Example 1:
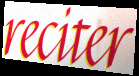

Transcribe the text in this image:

reciter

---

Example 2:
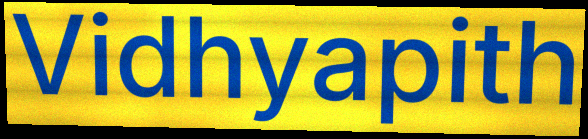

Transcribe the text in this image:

Vidhyapith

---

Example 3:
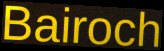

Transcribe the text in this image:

Bairoch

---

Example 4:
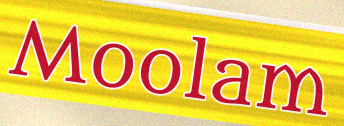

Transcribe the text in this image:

Moolam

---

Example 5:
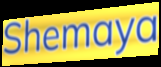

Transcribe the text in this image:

Shemaya